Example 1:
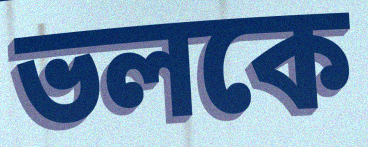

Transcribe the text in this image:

ভলকে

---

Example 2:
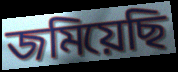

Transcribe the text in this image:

জমিয়েছি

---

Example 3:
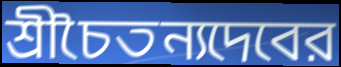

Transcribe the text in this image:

শ্রীচৈতন্যদেবের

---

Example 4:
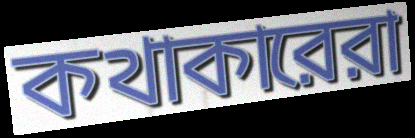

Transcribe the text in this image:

কথাকারেরা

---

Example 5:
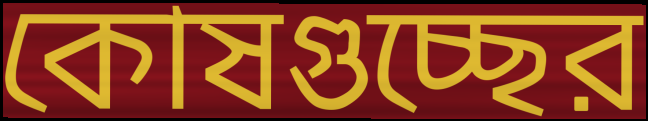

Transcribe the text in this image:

কোষগুচ্ছের